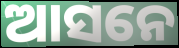
ଆସନେ